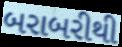
બરાબરીથી